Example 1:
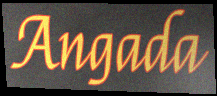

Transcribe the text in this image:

Angada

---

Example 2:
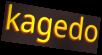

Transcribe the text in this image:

kagedo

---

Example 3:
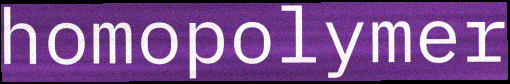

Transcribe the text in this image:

homopolymer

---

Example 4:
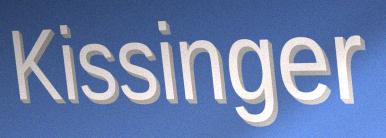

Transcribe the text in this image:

Kissinger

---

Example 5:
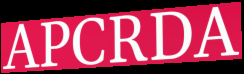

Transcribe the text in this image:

APCRDA